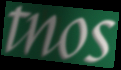
tnos